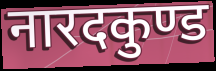
नारदकुण्ड